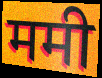
ममी